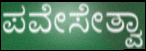
ಪವೇಸೇತ್ವಾ